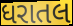
ધરાતલ